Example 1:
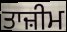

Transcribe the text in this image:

ਤਾਜ਼ੀਮ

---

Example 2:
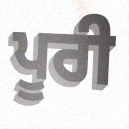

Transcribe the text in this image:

ਪੂਰੀ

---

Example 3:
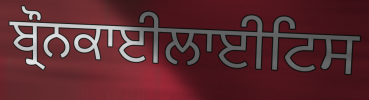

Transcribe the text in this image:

ਬ੍ਰੌਨਕਾਈਲਾਈਟਿਸ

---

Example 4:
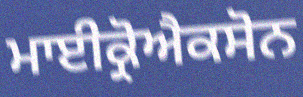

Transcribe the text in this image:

ਮਾਈਕ੍ਰੋਐਕਸੋਨ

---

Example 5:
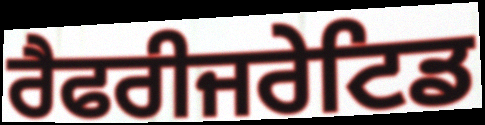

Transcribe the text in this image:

ਰੈਫਰੀਜਰੇਟਿਡ